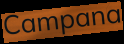
Campana